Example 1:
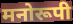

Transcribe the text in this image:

मनोरूपी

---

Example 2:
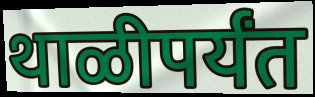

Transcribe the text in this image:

थाळीपर्यंत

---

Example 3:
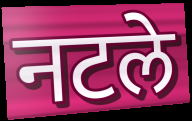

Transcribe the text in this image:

नटले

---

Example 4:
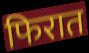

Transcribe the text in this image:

फिरात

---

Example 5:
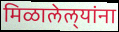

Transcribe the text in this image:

मिळालेल्यांना